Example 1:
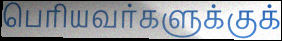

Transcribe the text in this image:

பெரியவர்களுக்குக்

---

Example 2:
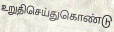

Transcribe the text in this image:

உறுதிசெய்துகொண்டு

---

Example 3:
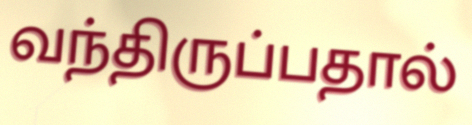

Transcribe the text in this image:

வந்திருப்பதால்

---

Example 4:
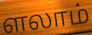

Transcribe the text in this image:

ளலாம்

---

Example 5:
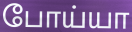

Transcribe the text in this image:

போய்யா